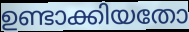
ഉണ്ടാക്കിയതോ